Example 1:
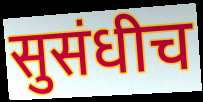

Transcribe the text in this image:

सुसंधीच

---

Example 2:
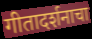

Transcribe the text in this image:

गीतादर्शनाचा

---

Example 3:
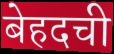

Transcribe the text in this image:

बेहदची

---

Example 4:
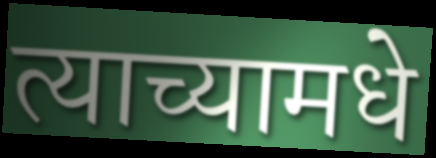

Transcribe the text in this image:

त्याच्यामधे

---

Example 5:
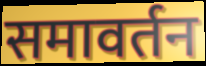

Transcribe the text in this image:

समावर्तन